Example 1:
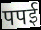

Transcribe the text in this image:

पपई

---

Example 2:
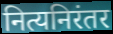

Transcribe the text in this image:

नित्यनिरंतर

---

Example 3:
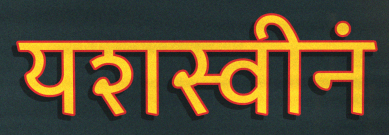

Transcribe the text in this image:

यशस्वीनं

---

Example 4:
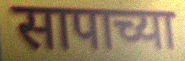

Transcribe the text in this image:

सापाच्या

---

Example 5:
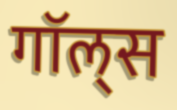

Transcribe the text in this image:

गॉल्स